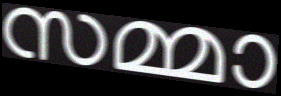
സമ്മാ